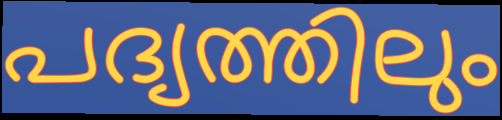
പദ്യത്തിലും